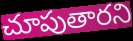
చూపుతారని